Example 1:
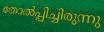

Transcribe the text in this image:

തോൽപ്പിച്ചിരുന്നു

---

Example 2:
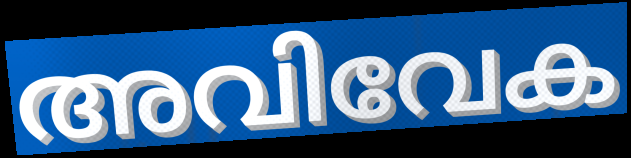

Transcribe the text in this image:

അവിവേക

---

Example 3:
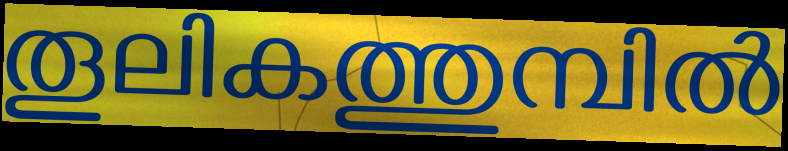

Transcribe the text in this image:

തൂലികത്തുമ്പിൽ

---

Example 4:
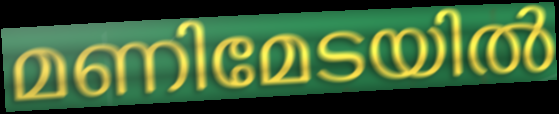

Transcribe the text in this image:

മണിമേടയിൽ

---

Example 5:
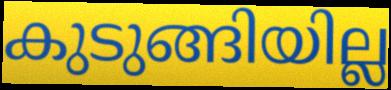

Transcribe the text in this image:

കുടുങ്ങിയില്ല